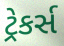
ટ્રેકર્સ